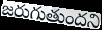
జరుగుతుందని